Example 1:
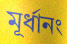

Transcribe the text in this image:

মূর্ধানং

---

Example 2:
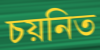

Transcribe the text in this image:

চয়নিত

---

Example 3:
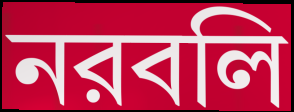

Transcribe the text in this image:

নরবলি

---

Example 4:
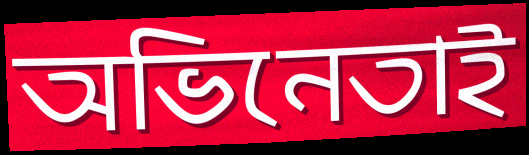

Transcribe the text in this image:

অভিনেতাই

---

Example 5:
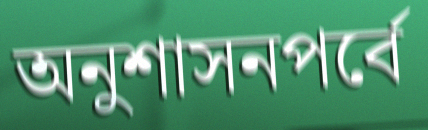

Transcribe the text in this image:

অনুশাসনপর্বে